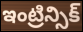
ఇంట్రిన్సిక్